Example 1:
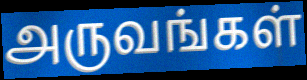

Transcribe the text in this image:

அருவங்கள்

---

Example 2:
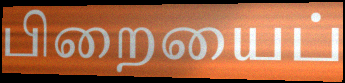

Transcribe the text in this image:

பிறையைப்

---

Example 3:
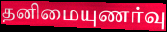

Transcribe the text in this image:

தனிமையுணர்வு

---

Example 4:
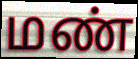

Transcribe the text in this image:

மண்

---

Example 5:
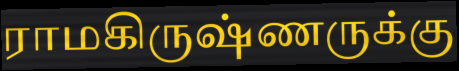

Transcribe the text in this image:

ராமகிருஷ்ணருக்கு